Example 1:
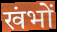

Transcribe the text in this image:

खंभों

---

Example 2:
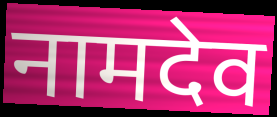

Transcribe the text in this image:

नामदेव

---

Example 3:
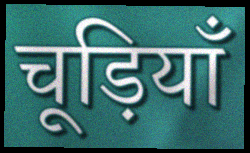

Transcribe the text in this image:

चूड़ियाँ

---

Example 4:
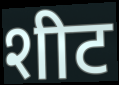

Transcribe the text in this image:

शीट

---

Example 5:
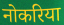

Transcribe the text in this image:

नोकरिया